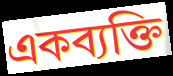
একব্যক্তি